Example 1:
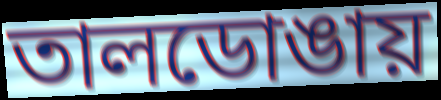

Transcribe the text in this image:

তালডোঙায়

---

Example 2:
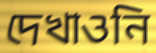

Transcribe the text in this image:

দেখাওনি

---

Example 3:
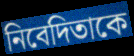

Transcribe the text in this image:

নিবেদিতাকে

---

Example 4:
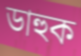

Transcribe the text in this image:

ডাহুক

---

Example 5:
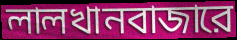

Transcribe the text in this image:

লালখানবাজারে